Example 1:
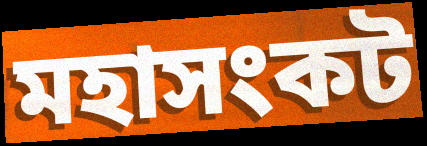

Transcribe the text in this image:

মহাসংকট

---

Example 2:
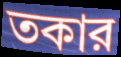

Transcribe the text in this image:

তকার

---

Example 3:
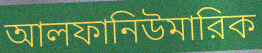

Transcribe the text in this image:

আলফানিউমারিক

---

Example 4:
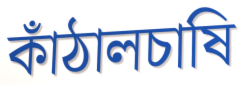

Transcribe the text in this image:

কাঁঠালচাষি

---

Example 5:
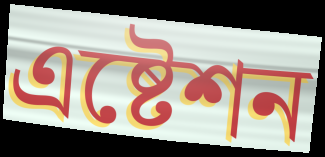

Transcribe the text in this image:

এষ্টেশন